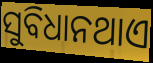
ସୁବିଧାନଥାଏ